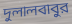
দুলালবাবুর